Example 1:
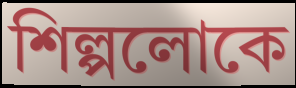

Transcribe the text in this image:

শিল্পলোকে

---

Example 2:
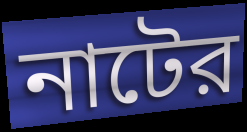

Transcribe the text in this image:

নাটের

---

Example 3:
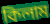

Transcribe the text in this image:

কিলাম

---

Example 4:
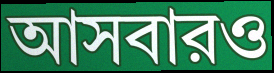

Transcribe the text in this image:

আসবারও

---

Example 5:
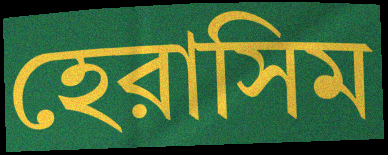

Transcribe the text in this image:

হেরাসিম